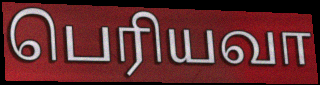
பெரியவா